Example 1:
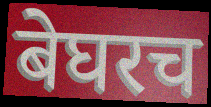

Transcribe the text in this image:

बेघरच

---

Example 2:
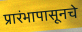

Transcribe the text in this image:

प्रारंभापासूनचे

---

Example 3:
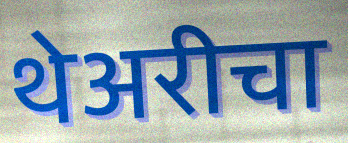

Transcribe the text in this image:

थेअरीचा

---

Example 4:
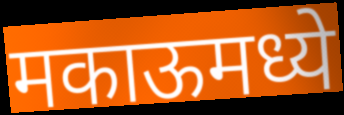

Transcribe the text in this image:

मकाऊमध्ये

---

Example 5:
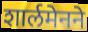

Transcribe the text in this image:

शार्लमेनने